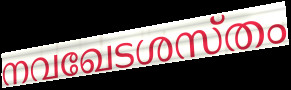
നവഖേടശസ്തം